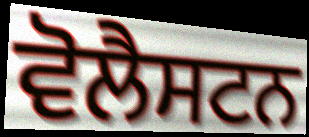
ਵੋਲੈਸਟਨ